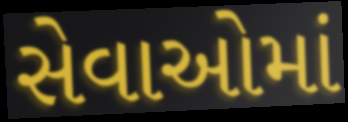
સેવાઓમાં